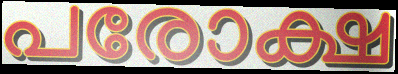
പരോക്ഷ